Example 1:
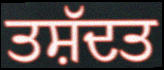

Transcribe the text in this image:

ਤਸ਼ੱਦਤ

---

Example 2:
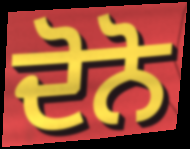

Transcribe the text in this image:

ਦੋਨੋ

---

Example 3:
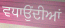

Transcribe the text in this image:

ਵਧਾਉਂਦੀਆਂ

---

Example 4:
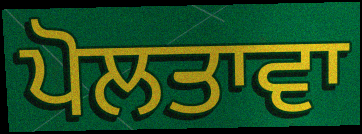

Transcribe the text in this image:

ਪੋਲਤਾਵਾ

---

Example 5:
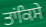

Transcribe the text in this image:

ਤਾਂਕਿਸੇ